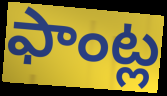
ఫాంట్ల